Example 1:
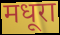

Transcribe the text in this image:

मधूरा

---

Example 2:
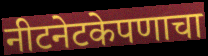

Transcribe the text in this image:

नीटनेटकेपणाचा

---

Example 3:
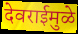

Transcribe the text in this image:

देवराईमुळे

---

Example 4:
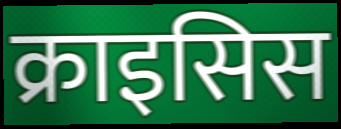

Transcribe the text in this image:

क्राइसिस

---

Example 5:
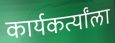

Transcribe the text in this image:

कार्यकर्त्यांला